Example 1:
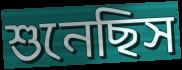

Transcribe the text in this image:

শুনেছিস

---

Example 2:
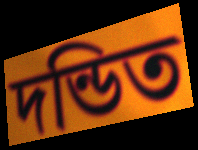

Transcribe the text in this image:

দন্ডিত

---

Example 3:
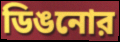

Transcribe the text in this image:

ডিঙনোর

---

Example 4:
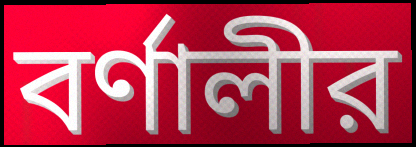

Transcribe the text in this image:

বর্ণালীর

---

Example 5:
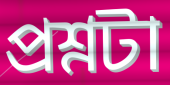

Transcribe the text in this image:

প্রশ্নটা